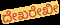
ದೇಖರೇಖೀ